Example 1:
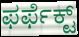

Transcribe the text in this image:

ಫರ್ಫೆಕ್ಟ್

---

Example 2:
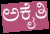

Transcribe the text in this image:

ಅಕೈತಿ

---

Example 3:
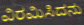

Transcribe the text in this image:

ವಿರಮಿಸಿದನು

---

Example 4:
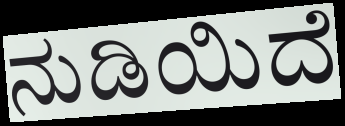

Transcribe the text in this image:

ನುಡಿಯಿದೆ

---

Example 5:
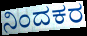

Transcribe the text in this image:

ನಿಂದಕರ